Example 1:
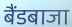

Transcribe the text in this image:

बैंडबाजा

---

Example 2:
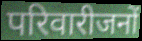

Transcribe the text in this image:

परिवारीजनों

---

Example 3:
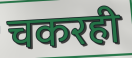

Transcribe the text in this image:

चकरही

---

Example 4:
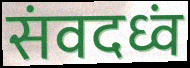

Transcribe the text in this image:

संवदध्वं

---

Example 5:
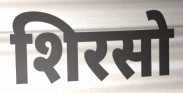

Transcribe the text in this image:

शिरसो